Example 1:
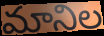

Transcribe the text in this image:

మానిల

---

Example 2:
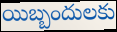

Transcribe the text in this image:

యిబ్బందులకు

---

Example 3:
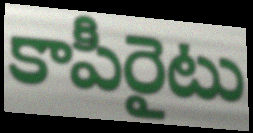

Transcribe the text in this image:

కాపీరైటు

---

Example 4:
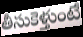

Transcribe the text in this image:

తీసుకెళ్తుంటే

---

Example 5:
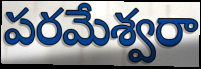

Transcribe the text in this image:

పరమేశ్వరా